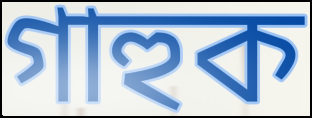
গাহুক